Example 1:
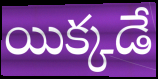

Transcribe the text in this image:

యిక్కడే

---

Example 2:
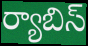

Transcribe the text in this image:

ర్యాబిస్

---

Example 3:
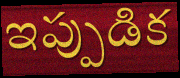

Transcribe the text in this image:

ఇప్పుడిక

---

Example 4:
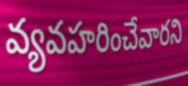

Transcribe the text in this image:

వ్యవహరించేవారని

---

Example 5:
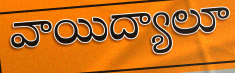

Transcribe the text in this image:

వాయిద్యాలూ